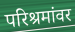
परिश्रमांवर